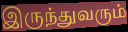
இருந்துவரும்